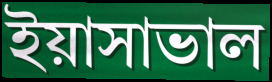
ইয়াসাভাল